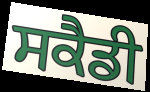
ਸਕੈਡੀ